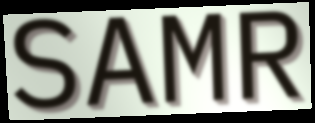
SAMR